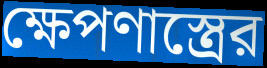
ক্ষেপণাস্ত্রের